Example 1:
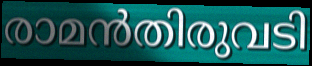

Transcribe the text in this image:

രാമൻതിരുവടി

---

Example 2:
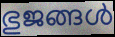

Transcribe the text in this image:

ഭുജങ്ങൾ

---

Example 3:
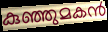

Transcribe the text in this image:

കുഞ്ഞുമകൻ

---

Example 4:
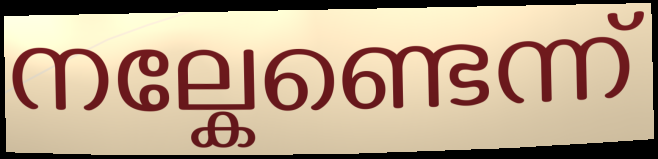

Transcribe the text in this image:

നല്കേണ്ടെന്ന്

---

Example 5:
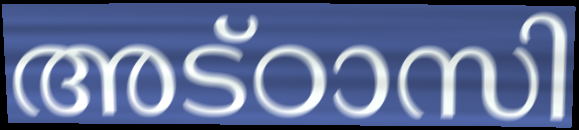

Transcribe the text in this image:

അട്ഠാസി